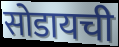
सोडायची